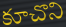
కూచొని